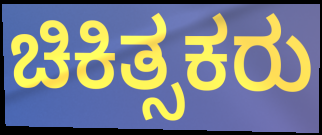
ಚಿಕಿತ್ಸಕರು